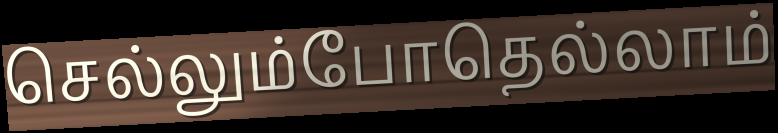
செல்லும்போதெல்லாம்